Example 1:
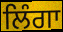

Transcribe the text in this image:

ਲਿੰਗਾ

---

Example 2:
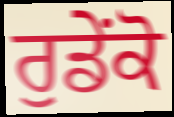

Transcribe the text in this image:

ਰੁਡੇਂਕੋ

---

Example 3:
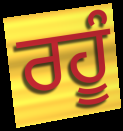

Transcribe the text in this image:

ਰਹੂੰ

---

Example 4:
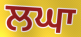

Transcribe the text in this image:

ਲਘਾ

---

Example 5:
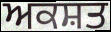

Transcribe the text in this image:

ਅਕਸ਼ਤ